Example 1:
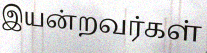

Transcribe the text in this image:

இயன்றவர்கள்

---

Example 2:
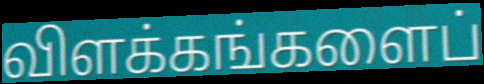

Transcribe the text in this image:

விளக்கங்களைப்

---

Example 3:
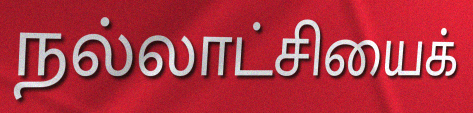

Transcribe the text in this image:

நல்லாட்சியைக்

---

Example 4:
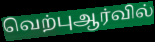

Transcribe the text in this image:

வெற்புஆர்வில்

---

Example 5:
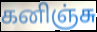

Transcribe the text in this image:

கனிஞ்சு